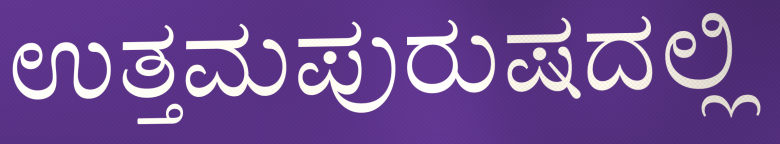
ಉತ್ತಮಪುರುಷದಲ್ಲಿ